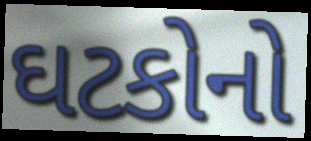
ઘટકોનો